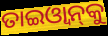
ତାଇଓ୍ବାନ୍‌କୁ